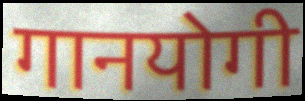
गानयोगी